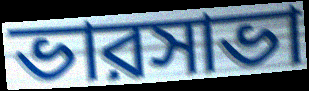
ভারসাভা